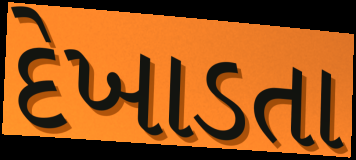
દેખાડતા